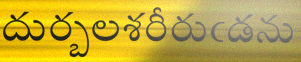
దుర్బలశరీరుఁడను